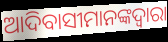
ଆଦିବାସୀମାନଙ୍କଦ୍ୱାରା